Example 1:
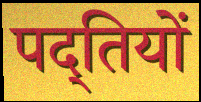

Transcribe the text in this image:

पद्तियों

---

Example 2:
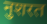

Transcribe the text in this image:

नुशरत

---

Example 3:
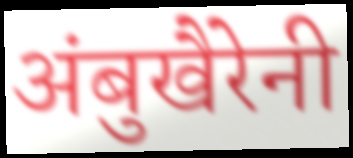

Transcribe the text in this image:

अंबुखैरेनी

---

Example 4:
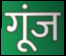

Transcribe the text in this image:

गूंज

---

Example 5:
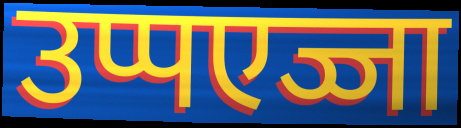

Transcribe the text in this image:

उप्पएज्जा